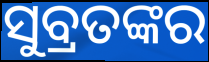
ସୁବ୍ରତଙ୍କର